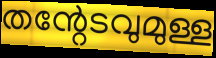
തന്റേടവുമുള്ള